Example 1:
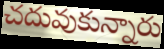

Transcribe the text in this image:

చదువుకున్నారు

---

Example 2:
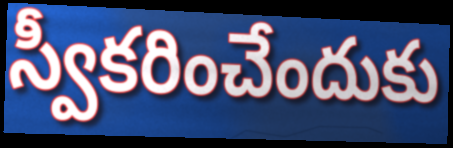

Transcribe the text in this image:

స్వీకరించేందుకు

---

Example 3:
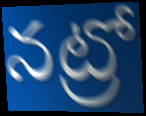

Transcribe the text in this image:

నట్రో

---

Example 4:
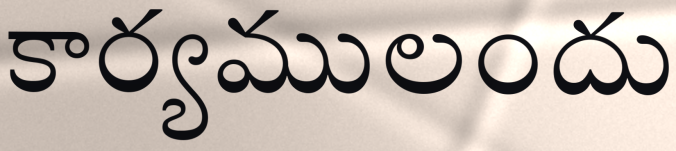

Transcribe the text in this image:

కార్యములందు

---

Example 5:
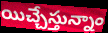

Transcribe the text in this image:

యిచ్చేస్తున్నాం